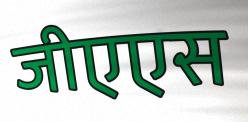
जीएएस